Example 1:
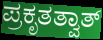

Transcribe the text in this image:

ಪ್ರಕೃತತ್ವಾತ್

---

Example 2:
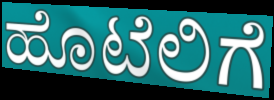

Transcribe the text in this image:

ಹೊಟೆಲಿಗೆ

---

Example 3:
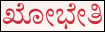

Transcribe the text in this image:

ಖೋಭೇತಿ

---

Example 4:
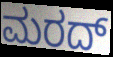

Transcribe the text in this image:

ಮರದ್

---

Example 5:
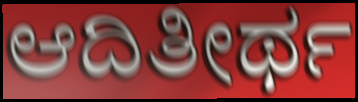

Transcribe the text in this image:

ಆದಿತೀರ್ಥ